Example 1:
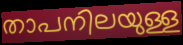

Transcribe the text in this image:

താപനിലയുള്ള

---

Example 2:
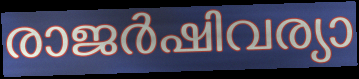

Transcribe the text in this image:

രാജർഷിവര്യാ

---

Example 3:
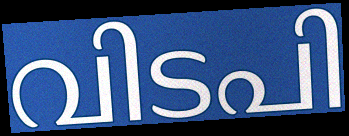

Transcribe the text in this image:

വിടപി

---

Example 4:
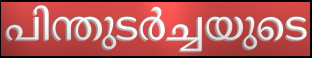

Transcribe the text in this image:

പിന്തുടർച്ചയുടെ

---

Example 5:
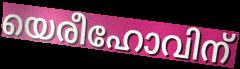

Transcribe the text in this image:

യെരീഹോവിന്